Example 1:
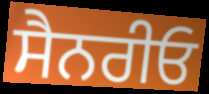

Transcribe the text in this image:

ਸੈਨਰੀਓ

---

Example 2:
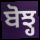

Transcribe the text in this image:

ਬੋਝ੍ਹ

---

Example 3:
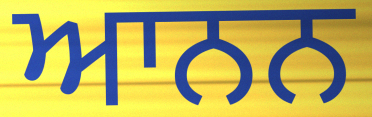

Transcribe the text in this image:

ਆਨਨ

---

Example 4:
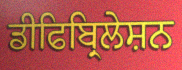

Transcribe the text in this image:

ਡੀਫਿਬ੍ਰਿਲੇਸ਼ਨ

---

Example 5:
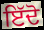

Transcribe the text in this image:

ਇੱਦੋ